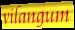
vilangum